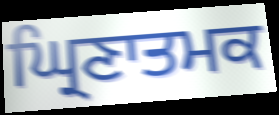
ਘ੍ਰਿਣਾਤਮਕ